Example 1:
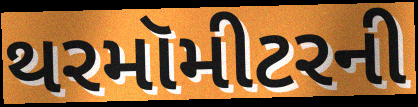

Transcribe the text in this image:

થરમૉમીટરની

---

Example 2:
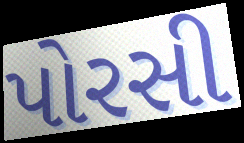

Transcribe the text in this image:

પોરસી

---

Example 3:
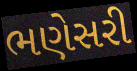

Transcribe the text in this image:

ભણેસરી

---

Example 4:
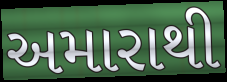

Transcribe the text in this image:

અમારાથી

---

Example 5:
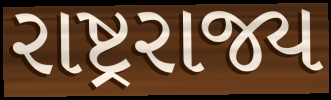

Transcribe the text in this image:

રાષ્ટ્રરાજ્ય